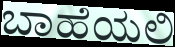
ಬಾಹೆಯಲಿ